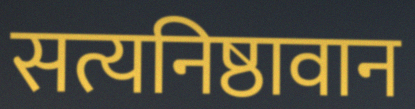
सत्यनिष्ठावान